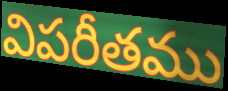
విపరీతము